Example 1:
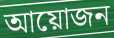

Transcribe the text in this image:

আয়োজন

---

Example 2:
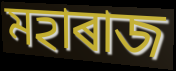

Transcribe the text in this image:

মহাৰাজ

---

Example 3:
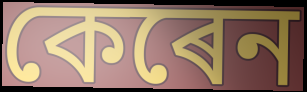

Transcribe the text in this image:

কেৰেন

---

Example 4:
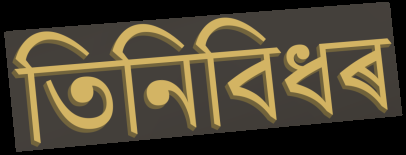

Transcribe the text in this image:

তিনিবিধৰ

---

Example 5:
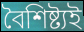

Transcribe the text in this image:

বৈশিষ্ট্যই